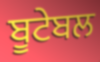
ਬੂਟੇਬਲ